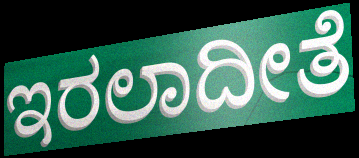
ಇರಲಾದೀತೆ